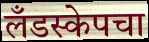
लँडस्केपचा